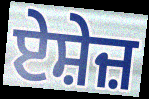
ਏਸ਼ੇਜ਼